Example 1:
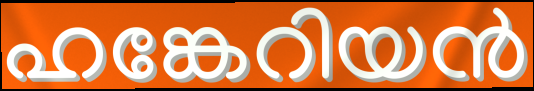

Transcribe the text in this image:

ഹങ്കേറിയൻ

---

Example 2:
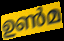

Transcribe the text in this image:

ഉൺമ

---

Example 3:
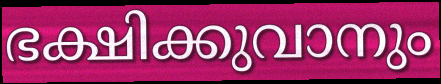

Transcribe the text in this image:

ഭക്ഷിക്കുവാനും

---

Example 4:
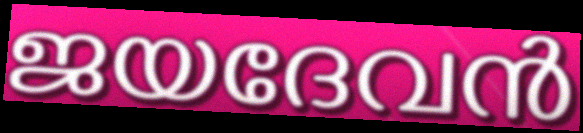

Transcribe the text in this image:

ജയദേവൻ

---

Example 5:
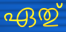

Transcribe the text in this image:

ഏതു്